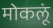
मोकलूं